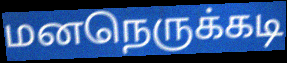
மனநெருக்கடி